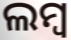
ଲମ୍ୱ